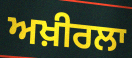
ਅਖ਼ੀਰਲਾ